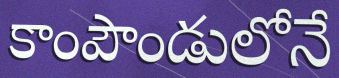
కాంపౌండులోనే